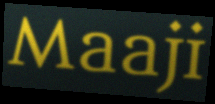
Maaji